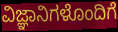
ವಿಜ್ಞಾನಿಗಳೊಂದಿಗೆ